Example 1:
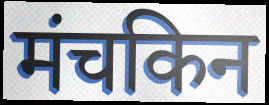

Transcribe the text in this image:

मंचकिन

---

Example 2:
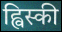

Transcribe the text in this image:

ह्विस्की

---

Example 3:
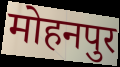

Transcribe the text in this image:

मोहनपुर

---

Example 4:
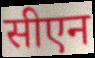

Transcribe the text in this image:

सीएन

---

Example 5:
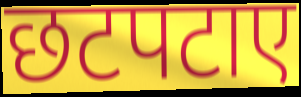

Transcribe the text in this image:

छटपटाए